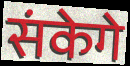
संकेगे